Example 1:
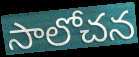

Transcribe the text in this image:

సాలోచన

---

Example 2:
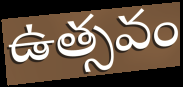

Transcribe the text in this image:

ఉత్సవం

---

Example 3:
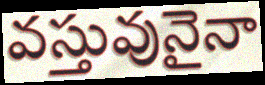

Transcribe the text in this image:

వస్తువునైనా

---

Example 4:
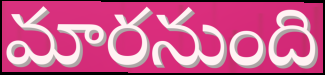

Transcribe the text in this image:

మారనుంది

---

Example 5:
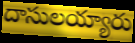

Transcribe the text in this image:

దాసులయ్యారు